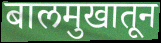
बालमुखातून